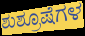
ಶುಶ್ರೂಷೆಗಳ